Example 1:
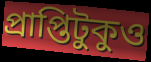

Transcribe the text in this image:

প্রাপ্তিটুকুও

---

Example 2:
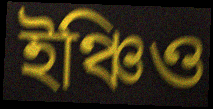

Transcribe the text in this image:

ইঞ্চিও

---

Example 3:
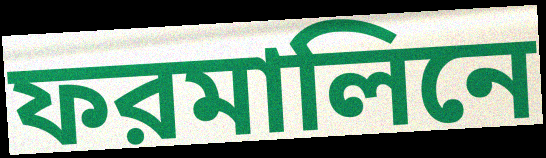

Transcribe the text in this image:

ফরমালিনে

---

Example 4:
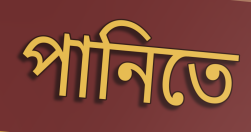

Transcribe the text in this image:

পানিতে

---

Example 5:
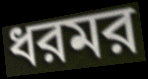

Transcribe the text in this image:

ধরমর